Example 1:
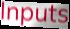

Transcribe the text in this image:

Inputs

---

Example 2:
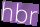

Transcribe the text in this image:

hbr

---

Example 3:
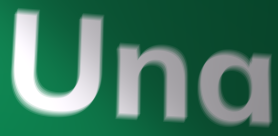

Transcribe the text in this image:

Una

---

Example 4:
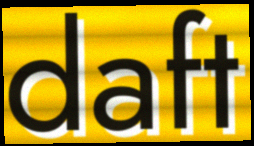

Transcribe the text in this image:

daft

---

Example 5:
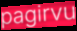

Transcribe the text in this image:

pagirvu